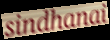
sindhanai